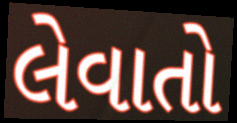
લેવાતો